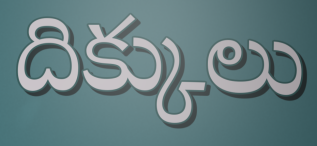
దిక్కులు